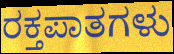
ರಕ್ತಪಾತಗಳು